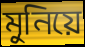
মুনিয়ে